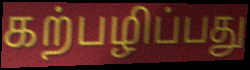
கற்பழிப்பது